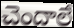
చెందాలే